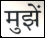
मुझें